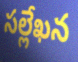
సల్లేఖన